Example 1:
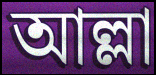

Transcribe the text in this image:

আল্লা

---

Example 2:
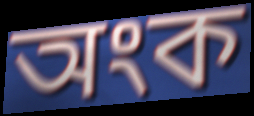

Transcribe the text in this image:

অংক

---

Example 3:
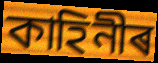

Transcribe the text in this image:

কাহিনীৰ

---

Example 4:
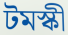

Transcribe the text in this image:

টমস্কী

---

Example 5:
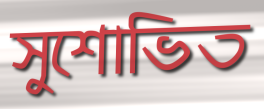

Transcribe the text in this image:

সুশোভিত